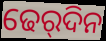
ଢେର୍‌ଦିନ